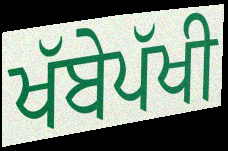
ਖੱਬੇਪੱਖੀ